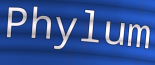
Phylum